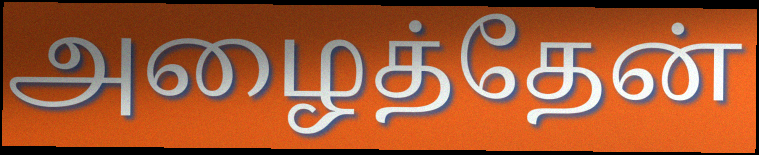
அழைத்தேன்